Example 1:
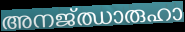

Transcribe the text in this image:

അനജ്ഝാരുഹാ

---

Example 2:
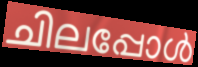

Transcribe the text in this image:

ചിലപ്പോൾ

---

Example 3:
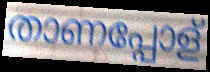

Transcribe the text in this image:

താണപ്പോള്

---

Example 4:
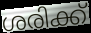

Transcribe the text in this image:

ശരിക്ക്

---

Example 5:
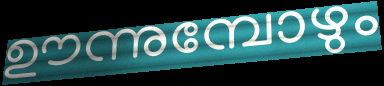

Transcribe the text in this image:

ഊന്നുമ്പോഴും